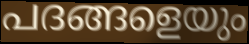
പദങ്ങളെയും